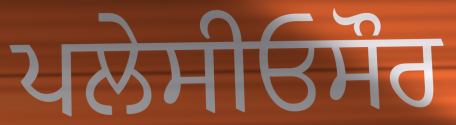
ਪਲੇਸੀਓਸੌਰ